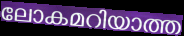
ലോകമറിയാത്ത